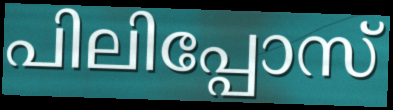
പിലിപ്പോസ്